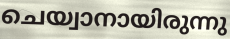
ചെയ്വാനായിരുന്നു